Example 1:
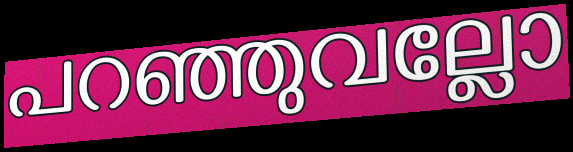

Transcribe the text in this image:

പറഞ്ഞുവല്ലോ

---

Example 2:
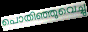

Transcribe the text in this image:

പൊതിഞ്ഞുവെച്ചു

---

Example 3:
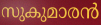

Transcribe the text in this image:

സുകുമാരൻ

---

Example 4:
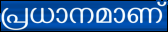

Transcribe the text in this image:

പ്രധാനമാണ്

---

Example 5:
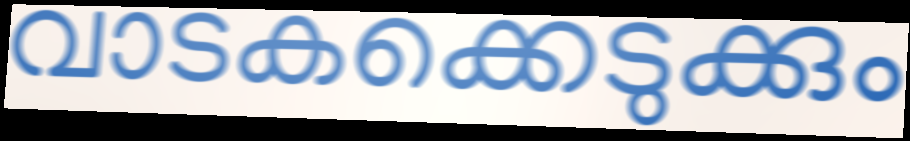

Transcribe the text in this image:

വാടകക്കെടുക്കും